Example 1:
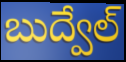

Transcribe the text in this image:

బుద్వేల్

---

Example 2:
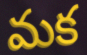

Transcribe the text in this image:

మక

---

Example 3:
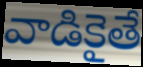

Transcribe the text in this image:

వాడికైతే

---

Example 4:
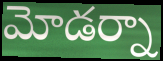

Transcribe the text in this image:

మోడర్నా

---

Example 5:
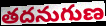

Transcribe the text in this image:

తదనుగుణ